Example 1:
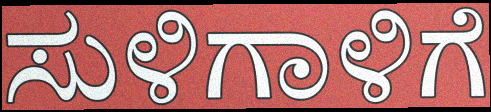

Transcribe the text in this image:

ಸುಳಿಗಾಳಿಗೆ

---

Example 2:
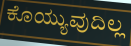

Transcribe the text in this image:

ಕೊಯ್ಯುವುದಿಲ್ಲ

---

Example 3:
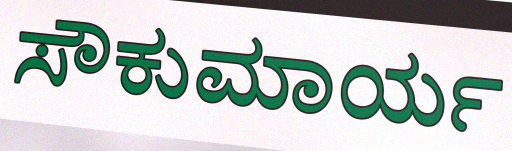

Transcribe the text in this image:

ಸೌಕುಮಾರ್ಯ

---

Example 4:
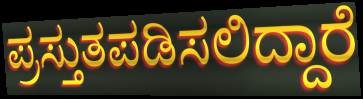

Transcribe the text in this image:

ಪ್ರಸ್ತುತಪಡಿಸಲಿದ್ದಾರೆ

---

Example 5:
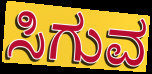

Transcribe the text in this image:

ಸಿಗುವ